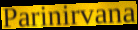
Parinirvana